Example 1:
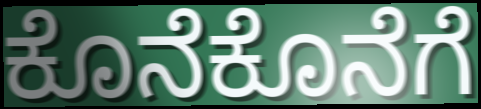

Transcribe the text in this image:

ಕೊನೆಕೊನೆಗೆ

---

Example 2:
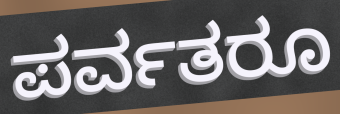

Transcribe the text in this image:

ಪರ್ವತರೂ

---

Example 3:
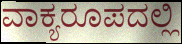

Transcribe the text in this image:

ವಾಕ್ಯರೂಪದಲ್ಲಿ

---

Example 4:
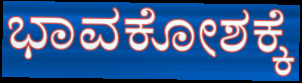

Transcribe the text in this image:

ಭಾವಕೋಶಕ್ಕೆ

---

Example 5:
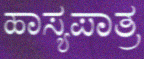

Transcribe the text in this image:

ಹಾಸ್ಯಪಾತ್ರ